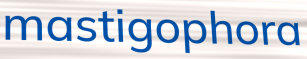
mastigophora